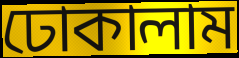
ঢোকালাম